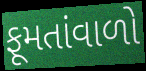
ફૂમતાંવાળો